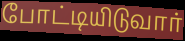
போட்டியிடுவார்